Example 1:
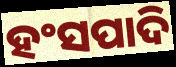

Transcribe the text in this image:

ହଂସପାଦି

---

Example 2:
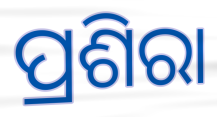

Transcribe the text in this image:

ପ୍ରଶିରା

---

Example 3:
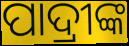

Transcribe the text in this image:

ପାଦ୍ରୀଙ୍କ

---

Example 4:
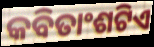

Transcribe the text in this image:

କବିତାଂଶଟିଏ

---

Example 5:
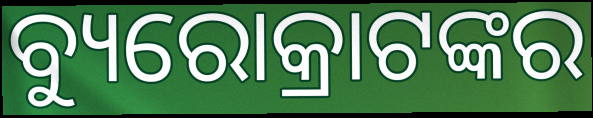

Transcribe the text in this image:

ବ୍ୟୁରୋକ୍ରାଟଙ୍କର